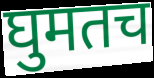
घुमतच